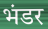
भंडर